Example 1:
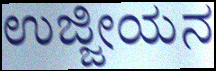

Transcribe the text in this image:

ಉಜ್ಜೀಯನ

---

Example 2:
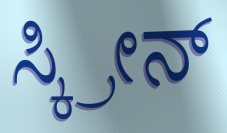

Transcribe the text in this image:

ಸ್ಕ್ರೀನ್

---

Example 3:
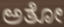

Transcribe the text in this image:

ಅತೋ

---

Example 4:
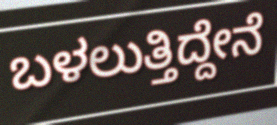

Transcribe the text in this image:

ಬಳಲುತ್ತಿದ್ದೇನೆ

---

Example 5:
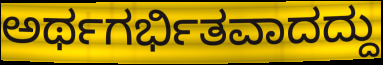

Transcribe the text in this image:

ಅರ್ಥಗರ್ಭಿತವಾದದ್ದು